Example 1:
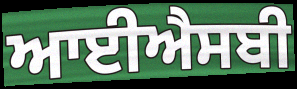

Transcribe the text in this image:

ਆਈਐਸਬੀ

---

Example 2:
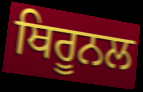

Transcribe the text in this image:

ਥਿਰੂਨਲ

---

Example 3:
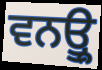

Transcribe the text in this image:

ਵਨਊ੍ਨ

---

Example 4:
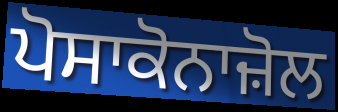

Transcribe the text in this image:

ਪੋਸਾਕੋਨਾਜ਼ੋਲ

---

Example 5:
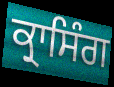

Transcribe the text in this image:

ਕ੍ਰਾਸਿੰਗ